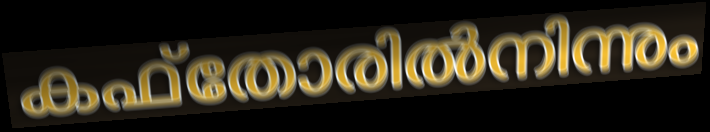
കഫ്തോരിൽനിന്നും